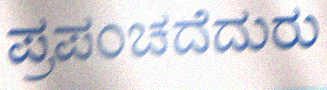
ಪ್ರಪಂಚದೆದುರು